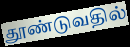
தூண்டுவதில்